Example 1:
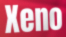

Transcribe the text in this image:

Xeno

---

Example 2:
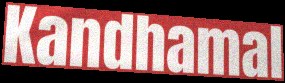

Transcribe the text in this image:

Kandhamal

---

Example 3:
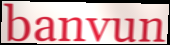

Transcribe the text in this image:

banvun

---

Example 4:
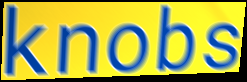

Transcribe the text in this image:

knobs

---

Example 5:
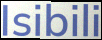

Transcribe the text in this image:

Isibili